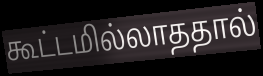
கூட்டமில்லாததால்